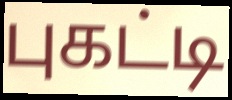
புகட்டி